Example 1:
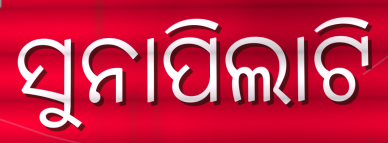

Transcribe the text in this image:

ସୁନାପିଲାଟି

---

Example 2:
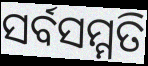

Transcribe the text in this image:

ସର୍ବସମ୍ମତି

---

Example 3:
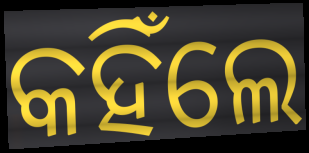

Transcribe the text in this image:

କହିଁଲେ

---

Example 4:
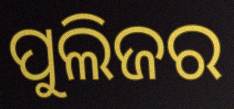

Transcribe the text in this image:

ପୁଲିଜର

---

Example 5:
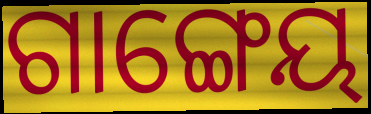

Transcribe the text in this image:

ଗାଙ୍ଗେୟ